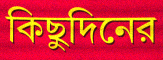
কিছুদিনের